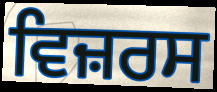
ਵਿਜ਼ਰਸ